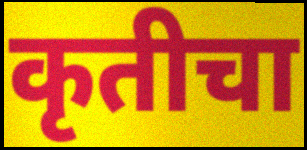
कृतीचा